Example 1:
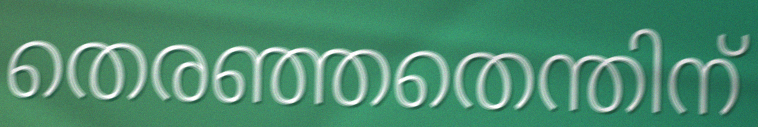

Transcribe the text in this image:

തെരഞ്ഞതെന്തിന്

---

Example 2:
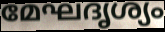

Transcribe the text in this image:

മേഘദൃശ്യം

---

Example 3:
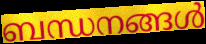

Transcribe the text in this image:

ബന്ധനങ്ങൾ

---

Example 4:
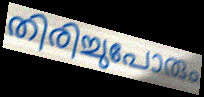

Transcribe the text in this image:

തിരിച്ചുപോരും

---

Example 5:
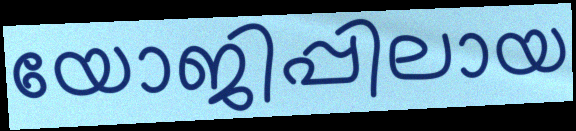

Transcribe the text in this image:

യോജിപ്പിലായ